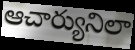
ఆచార్యునిలా